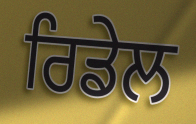
ਰਿਡੇਲ